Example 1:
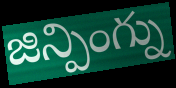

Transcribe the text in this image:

జిన్పింగ్ను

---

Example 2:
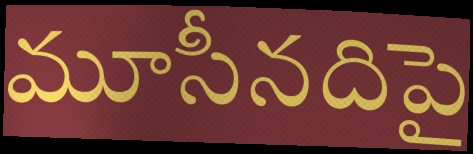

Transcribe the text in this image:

మూసీనదిపై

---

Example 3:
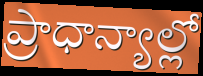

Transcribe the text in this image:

ప్రాధాన్యాల్లో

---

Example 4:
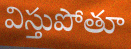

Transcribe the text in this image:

విస్తుపోతూ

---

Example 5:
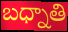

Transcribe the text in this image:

బధ్నాతి